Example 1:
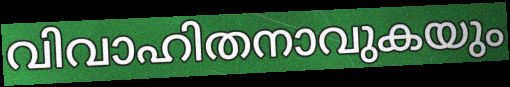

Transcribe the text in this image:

വിവാഹിതനാവുകയും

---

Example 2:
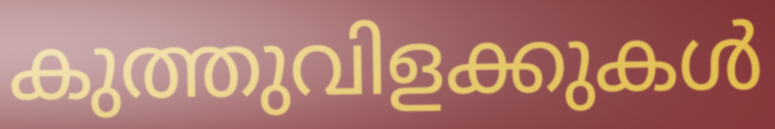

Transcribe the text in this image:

കുത്തുവിളക്കുകൾ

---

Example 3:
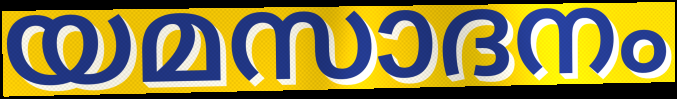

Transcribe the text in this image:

യമസാദനം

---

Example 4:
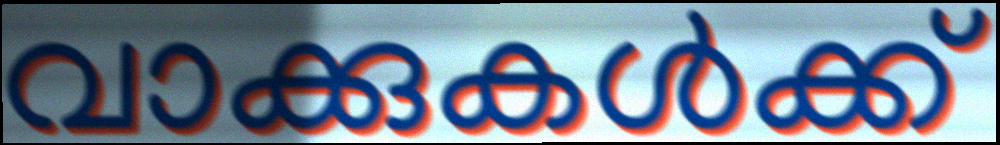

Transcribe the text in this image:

വാക്കുകൾക്ക്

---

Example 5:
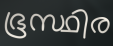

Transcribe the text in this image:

ഭൂസ്ഥിര